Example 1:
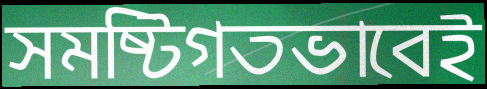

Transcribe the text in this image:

সমষ্টিগতভাবেই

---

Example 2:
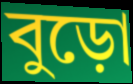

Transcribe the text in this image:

বুড়ো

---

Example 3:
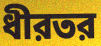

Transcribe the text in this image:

ধীরতর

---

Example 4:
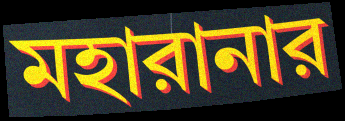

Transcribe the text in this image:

মহারানার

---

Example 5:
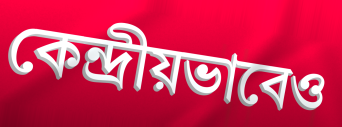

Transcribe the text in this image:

কেন্দ্রীয়ভাবেও